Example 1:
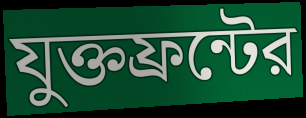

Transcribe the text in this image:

যুক্তফ্রন্টের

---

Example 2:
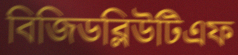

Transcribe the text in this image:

বিজিডব্লিউটিএফ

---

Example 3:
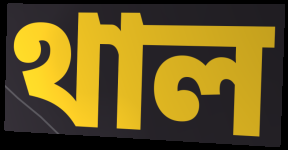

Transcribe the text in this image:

থাল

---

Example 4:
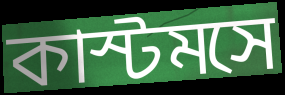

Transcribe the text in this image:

কাস্টমসে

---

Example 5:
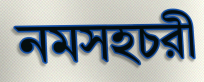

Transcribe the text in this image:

নমসহচরী